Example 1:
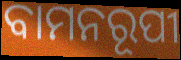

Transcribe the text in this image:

ବାମନରୂପୀ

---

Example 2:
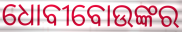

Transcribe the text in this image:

ଧୋବୀବୋଉଙ୍କର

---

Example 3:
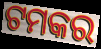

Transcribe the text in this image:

ଟମକର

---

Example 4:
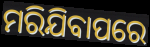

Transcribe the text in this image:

ମରିଯିବାପରେ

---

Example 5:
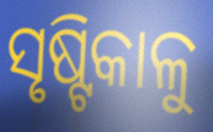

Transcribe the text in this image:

ସୃଷ୍ଟିକାଳୁ